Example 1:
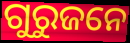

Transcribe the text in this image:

ଗୁରୁଜନେ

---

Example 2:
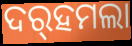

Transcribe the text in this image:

ଦର୍‌ହମଲା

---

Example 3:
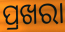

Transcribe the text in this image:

ପ୍ରଖରା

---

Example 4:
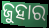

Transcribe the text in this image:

ଜୁହାର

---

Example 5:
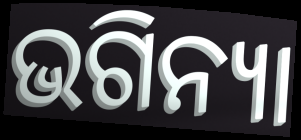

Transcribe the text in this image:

ଭଗିନ୍ୟା